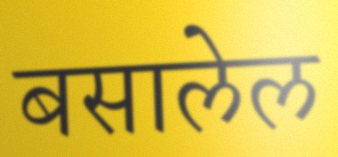
बसालेल